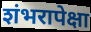
शंभरापेक्षा